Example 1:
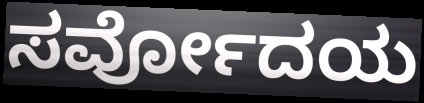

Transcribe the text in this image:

ಸರ್ವೋದಯ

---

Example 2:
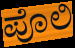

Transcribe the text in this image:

ಪೊಲಿ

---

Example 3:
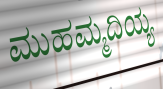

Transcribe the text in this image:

ಮುಹಮ್ಮದಿಯ್ಯ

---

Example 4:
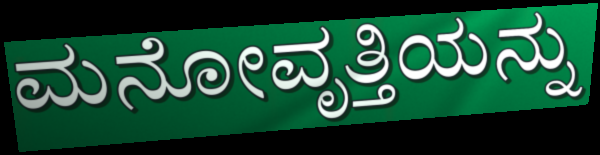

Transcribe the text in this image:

ಮನೋವೃತ್ತಿಯನ್ನು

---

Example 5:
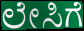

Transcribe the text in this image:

ಲೇಸಿಗೆ